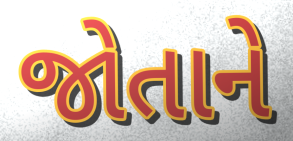
જોતાને